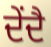
ਦੇਂਦੈ